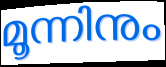
മൂന്നിനും